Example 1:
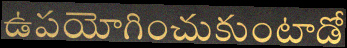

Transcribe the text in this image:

ఉపయోగించుకుంటాడో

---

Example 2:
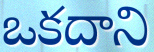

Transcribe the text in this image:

ఒకదాని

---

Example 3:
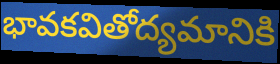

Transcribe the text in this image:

భావకవితోద్యమానికి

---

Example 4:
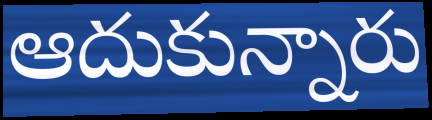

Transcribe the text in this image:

ఆదుకున్నారు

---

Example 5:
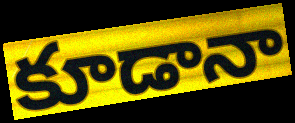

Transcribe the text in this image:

కూడానా